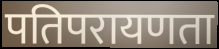
पतिपरायणता